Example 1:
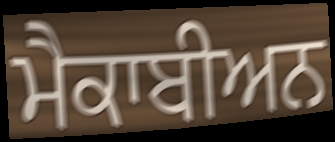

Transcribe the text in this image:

ਮੈਕਾਬੀਅਨ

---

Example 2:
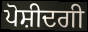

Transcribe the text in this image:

ਪੋਸ਼ੀਦਗੀ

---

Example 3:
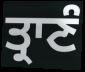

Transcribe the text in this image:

ਤ੍ਰਾਣੰ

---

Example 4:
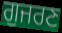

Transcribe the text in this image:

ਗੁਜਰਣ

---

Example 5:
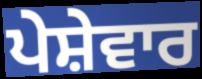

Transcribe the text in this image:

ਪੇਸ਼ੇਵਾਰ